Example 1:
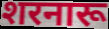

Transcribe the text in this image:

शरनारू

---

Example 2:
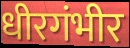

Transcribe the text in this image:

धीरगंभीर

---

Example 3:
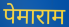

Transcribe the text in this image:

पेमाराम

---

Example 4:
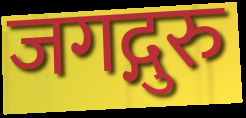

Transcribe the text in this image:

जगद्गुरु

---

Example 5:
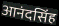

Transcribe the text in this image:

आनंदसिंह